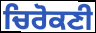
ਚਿਰੋਕਣੀ